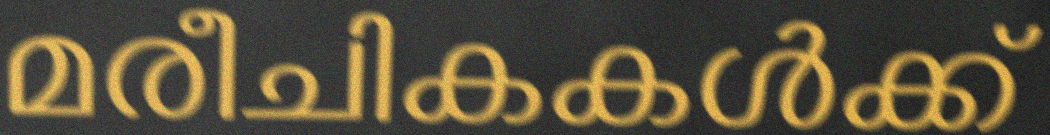
മരീചികകൾക്ക്